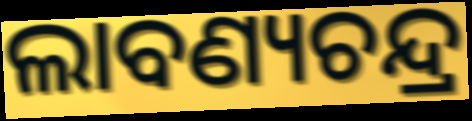
ଲାବଣ୍ୟଚନ୍ଦ୍ର